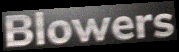
Blowers